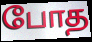
போத